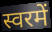
स्वरमें